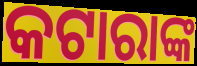
କଟାରାଙ୍କ